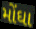
મોંઘા